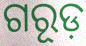
ଗରୂଡ଼